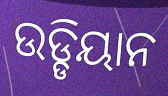
ଉଡ୍ଡିୟାନ